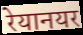
रेयानयर